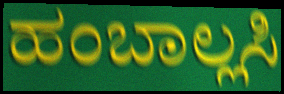
ಹಂಬಾಲ್ಲಸಿ